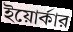
ইয়োর্কার